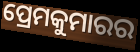
ପ୍ରେମକୁମାରର